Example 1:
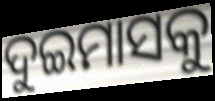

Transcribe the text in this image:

ଦୁଇମାସକୁ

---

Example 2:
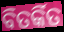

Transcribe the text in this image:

ବିତର୍କିତ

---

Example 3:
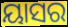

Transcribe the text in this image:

ୟାସର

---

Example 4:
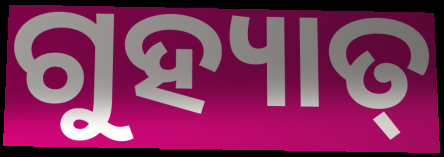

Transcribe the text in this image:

ଗୁହ୍ୟାତ୍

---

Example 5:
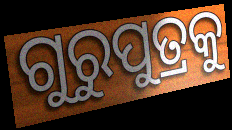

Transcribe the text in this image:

ଗୁରୁପୁତ୍ରକୁ